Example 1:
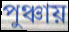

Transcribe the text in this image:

পুঞ্চায়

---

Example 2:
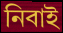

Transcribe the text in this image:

নিবাই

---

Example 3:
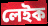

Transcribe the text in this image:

লেইক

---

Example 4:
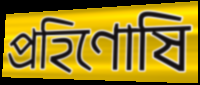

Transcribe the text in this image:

প্রহিণোষি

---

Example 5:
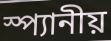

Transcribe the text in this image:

স্প্যানীয়